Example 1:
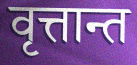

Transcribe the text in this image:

वृत्तान्त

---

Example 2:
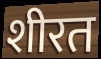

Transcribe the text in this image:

शीरत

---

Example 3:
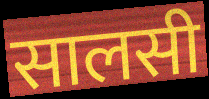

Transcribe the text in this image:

सालसी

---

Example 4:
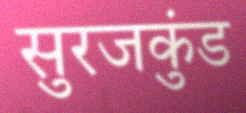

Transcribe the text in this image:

सुरजकुंड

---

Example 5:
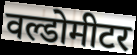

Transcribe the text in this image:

वल्डोमीटर